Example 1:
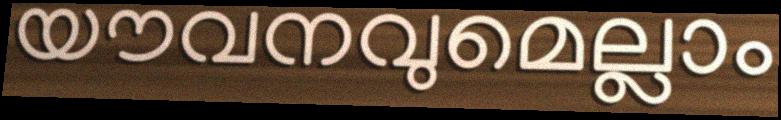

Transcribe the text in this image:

യൗവനവുമെല്ലാം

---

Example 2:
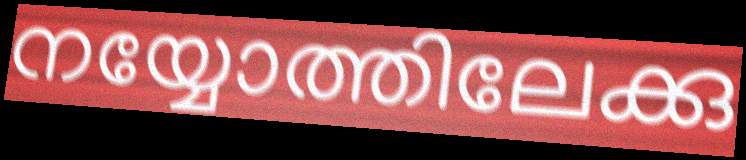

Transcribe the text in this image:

നയ്യോത്തിലേക്കു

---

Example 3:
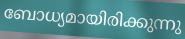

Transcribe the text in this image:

ബോധ്യമായിരിക്കുന്നു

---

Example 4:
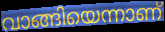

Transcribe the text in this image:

വാങ്ങിയെന്നാണ്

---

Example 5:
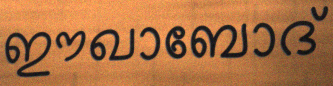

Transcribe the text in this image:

ഈഖാബോദ്